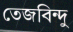
তেজবিন্দু